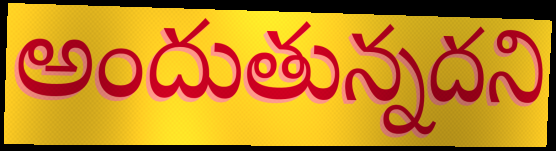
అందుతున్నదని